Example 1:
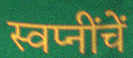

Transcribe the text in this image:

स्वप्नींचें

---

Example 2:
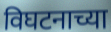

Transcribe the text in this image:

विघटनाच्या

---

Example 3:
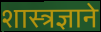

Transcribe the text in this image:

शास्त्रज्ञाने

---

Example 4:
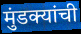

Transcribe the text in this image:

मुंडक्यांची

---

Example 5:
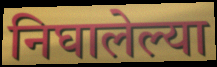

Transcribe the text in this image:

निघालेल्या